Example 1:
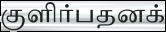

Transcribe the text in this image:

குளிர்பதனக்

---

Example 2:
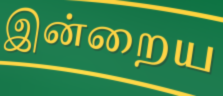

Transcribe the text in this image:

இன்றைய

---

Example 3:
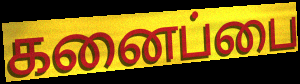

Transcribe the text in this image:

கனைப்பை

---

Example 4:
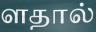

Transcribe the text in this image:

ளதால்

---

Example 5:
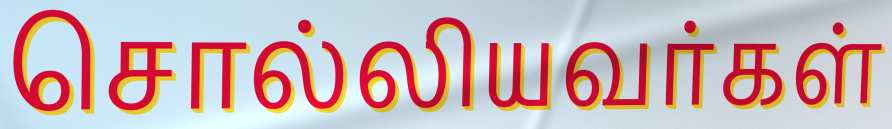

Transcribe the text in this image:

சொல்லியவர்கள்